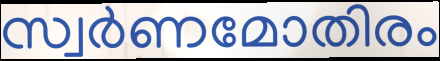
സ്വർണമോതിരം